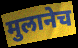
मुलानेच